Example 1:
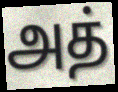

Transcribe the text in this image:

அத்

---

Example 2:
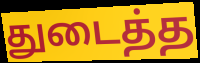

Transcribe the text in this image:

துடைத்த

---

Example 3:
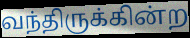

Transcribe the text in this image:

வந்திருக்கின்ற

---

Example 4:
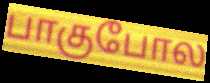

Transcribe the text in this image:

பாகுபோல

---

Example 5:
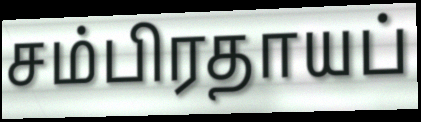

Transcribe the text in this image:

சம்பிரதாயப்